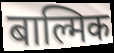
बाल्मिक